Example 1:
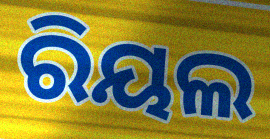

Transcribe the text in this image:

ରିୟଲ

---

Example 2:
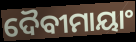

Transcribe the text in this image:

ଦୈବୀମାୟାଂ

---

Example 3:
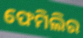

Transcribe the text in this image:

ଫେମିଲିର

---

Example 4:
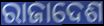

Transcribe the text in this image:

ରାଜାଦେଶ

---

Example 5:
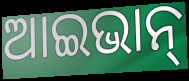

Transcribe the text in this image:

ଆଇଭାନ୍